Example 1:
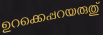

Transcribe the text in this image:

ഉറക്കെപ്പറയരുതു്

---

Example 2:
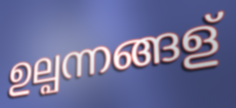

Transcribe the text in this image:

ഉല്പന്നങ്ങള്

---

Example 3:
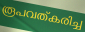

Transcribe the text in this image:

രൂപവത്കരിച്ച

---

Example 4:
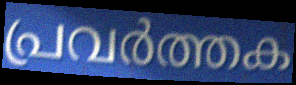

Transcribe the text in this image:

പ്രവർത്തക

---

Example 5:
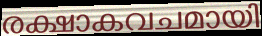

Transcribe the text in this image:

രക്ഷാകവചമായി